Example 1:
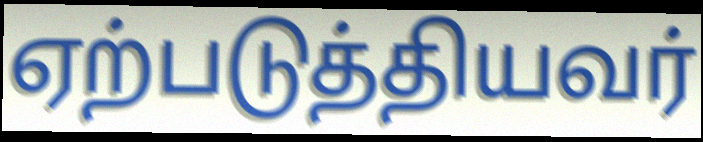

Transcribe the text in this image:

ஏற்படுத்தியவர்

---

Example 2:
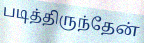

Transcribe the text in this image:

படித்திருந்தேன்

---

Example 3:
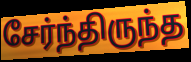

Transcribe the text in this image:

சேர்ந்திருந்த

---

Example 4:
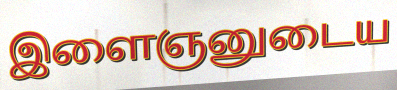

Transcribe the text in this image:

இளைஞனுடைய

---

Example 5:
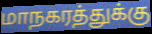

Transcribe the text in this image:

மாநகரத்துக்கு